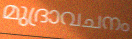
മുദ്രാവചനം